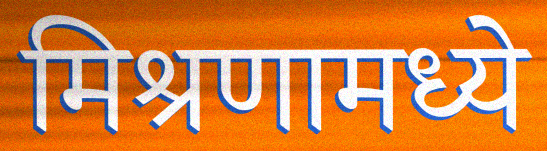
मिश्रणामध्ये